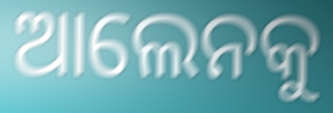
ଆଲେନକୁ